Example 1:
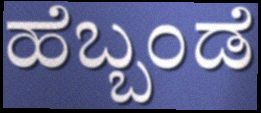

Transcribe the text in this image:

ಹೆಬ್ಬಂಡೆ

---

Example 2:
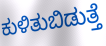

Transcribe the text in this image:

ಕುಳಿತುಬಿಡುತ್ತೆ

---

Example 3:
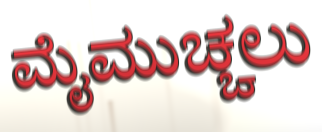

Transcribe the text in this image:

ಮೈಮುಚ್ಚಲು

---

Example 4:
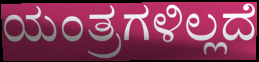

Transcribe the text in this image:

ಯಂತ್ರಗಳಿಲ್ಲದೆ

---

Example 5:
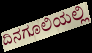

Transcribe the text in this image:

ದಿನಗೂಲಿಯಲ್ಲಿ